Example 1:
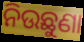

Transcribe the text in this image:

ନିଉଛୁଣା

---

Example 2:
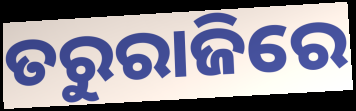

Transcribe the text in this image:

ତରୁରାଜିରେ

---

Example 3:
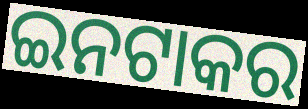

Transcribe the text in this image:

ଇନଟାକର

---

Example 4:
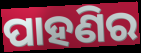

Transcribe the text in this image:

ପାହଣିର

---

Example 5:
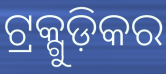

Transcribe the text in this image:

ଟ୍ରକ୍ଗୁଡ଼ିକର